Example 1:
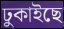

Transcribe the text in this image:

ঢুকাইছে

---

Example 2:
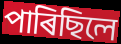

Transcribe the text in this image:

পাৰিছিলে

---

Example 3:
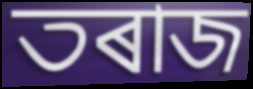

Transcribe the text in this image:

তৰাজ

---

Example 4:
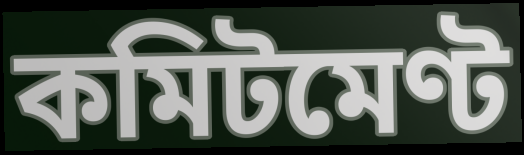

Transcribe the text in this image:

কমিটমেণ্ট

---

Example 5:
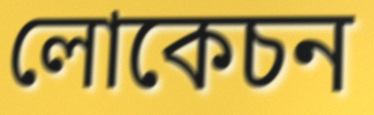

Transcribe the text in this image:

লোকেচন